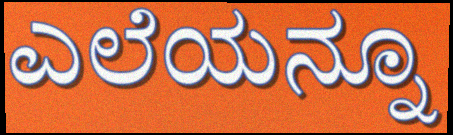
ಎಲೆಯನ್ನೂ